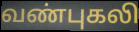
வண்புகலி